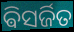
ଵିସର୍ଜିତ